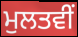
ਮੁਲਤਵੀਂ